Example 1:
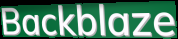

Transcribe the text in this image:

Backblaze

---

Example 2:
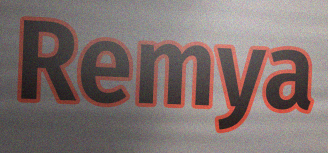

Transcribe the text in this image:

Remya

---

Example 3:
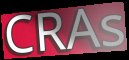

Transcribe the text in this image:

CRAs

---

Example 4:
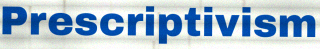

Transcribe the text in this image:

Prescriptivism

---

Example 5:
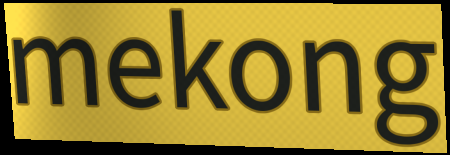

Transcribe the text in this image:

mekong